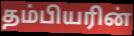
தம்பியரின்